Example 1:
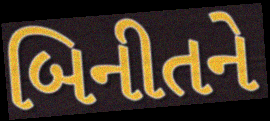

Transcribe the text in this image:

બિનીતને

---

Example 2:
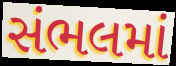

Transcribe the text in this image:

સંભલમાં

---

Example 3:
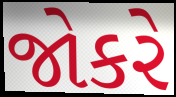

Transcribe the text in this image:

જોકરે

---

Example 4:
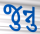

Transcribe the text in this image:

જુન્નુ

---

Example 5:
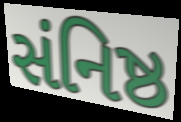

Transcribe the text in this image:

સંનિષ્ઠ